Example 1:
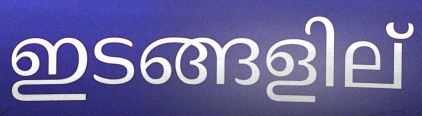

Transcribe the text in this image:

ഇടങ്ങളില്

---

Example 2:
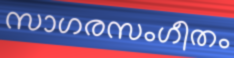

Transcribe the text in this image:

സാഗരസംഗീതം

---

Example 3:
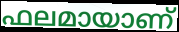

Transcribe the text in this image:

ഫലമായാണ്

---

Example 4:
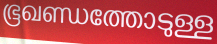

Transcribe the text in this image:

ഭൂഖണ്ഡത്തോടുള്ള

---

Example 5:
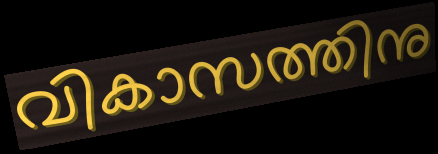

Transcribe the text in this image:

വികാസത്തിനു